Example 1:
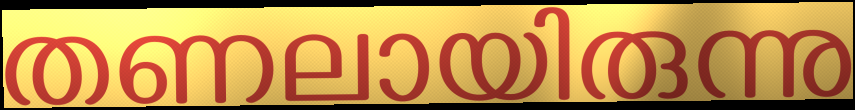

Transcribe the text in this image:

തണലായിരുന്നു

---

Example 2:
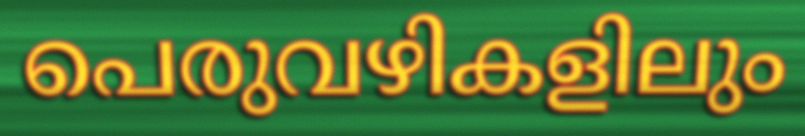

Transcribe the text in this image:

പെരുവഴികളിലും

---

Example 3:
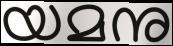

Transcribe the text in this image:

യമനു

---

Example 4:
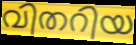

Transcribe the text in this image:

വിതറിയ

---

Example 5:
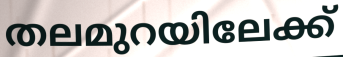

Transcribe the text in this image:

തലമുറയിലേക്ക്